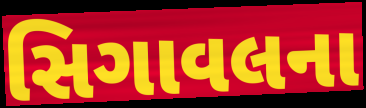
સિગાવલના